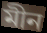
মীন